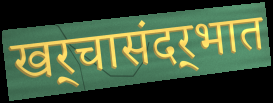
खर्चासंदर्भात